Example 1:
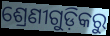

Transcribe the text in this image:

ଶ୍ରେଣୀଗୁଡ଼ିକରୁ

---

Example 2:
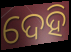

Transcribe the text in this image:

ଦେହି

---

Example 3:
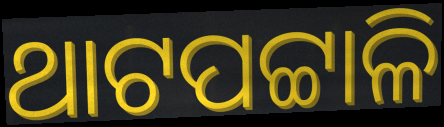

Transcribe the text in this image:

ଥାଟପଟ୍ଟାଳି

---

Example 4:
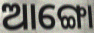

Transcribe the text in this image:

ଆଙ୍ଗୋ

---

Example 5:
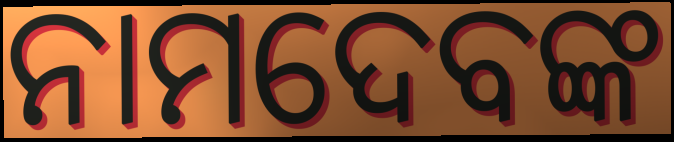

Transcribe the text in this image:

ନାମଦେବଙ୍କ